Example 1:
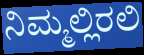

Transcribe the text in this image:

ನಿಮ್ಮಲ್ಲಿರಲಿ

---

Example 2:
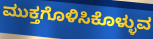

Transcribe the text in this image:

ಮುಕ್ತಗೊಳಿಸಿಕೊಳ್ಳುವ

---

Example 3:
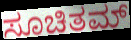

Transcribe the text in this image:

ಸೂಚಿತಮ್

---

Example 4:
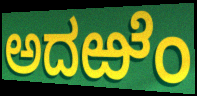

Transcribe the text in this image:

ಅದಱೆಂ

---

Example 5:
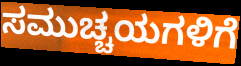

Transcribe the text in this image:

ಸಮುಚ್ಚಯಗಳಿಗೆ